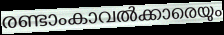
രണ്ടാംകാവൽക്കാരെയും